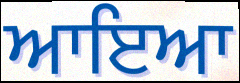
ਆਇਆ